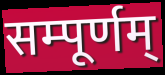
सम्पूर्णम्